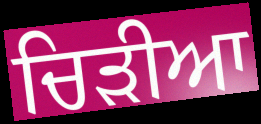
ਚਿੜੀਆ